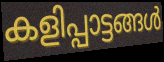
കളിപ്പാട്ടങ്ങൾ